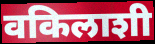
वकिलाशी